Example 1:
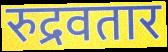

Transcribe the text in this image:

रुद्रवतार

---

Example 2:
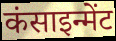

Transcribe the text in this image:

कंसाइन्मेंट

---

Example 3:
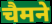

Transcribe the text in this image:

चैमने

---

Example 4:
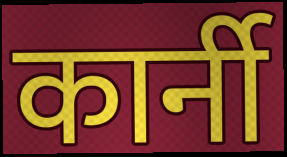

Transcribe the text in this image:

कार्नी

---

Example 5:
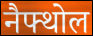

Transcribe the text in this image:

नैफ्थोल